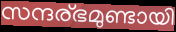
സന്ദര്ഭമുണ്ടായി